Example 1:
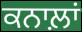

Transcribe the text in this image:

ਕਨਾਲ਼ਾਂ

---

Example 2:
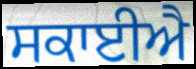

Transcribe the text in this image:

ਸਕਾਈਐ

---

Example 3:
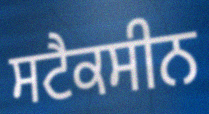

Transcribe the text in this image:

ਸਟੈਕਸੀਨ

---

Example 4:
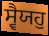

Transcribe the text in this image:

ਸ੍ਵੈਯਹੁ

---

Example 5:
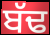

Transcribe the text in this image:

ਬੱਢ